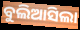
ବୁଲିଆସିଲା